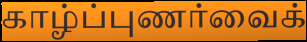
காழ்ப்புணர்வைக்